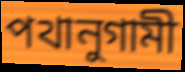
পথানুগামী